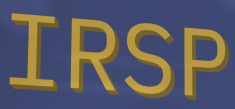
IRSP